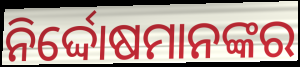
ନିର୍ଦ୍ଦୋଷମାନଙ୍କର